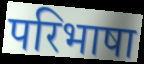
परिभाषा